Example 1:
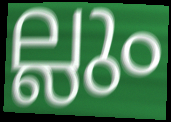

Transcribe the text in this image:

ല്ലും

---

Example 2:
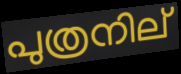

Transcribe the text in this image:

പുത്രനില്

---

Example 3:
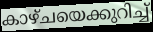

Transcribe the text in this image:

കാഴ്ചയെക്കുറിച്ച്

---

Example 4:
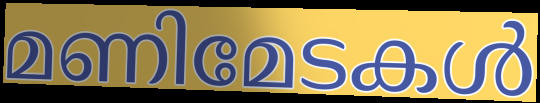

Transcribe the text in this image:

മണിമേടകൾ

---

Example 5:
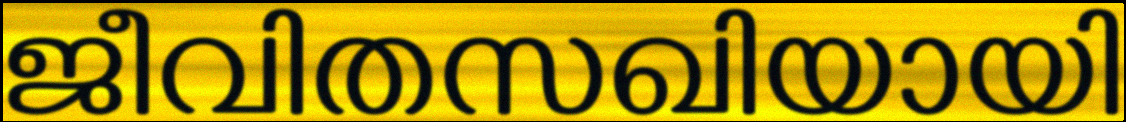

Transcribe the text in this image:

ജീവിതസഖിയായി